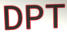
DPT